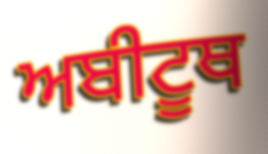
ਅਬੀਟੂਥ